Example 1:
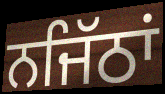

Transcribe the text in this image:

ਨਜਿੱਠਾਂ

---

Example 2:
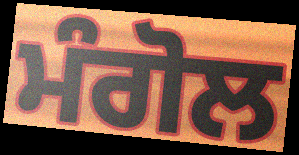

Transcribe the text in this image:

ਮੰਗੋਲ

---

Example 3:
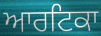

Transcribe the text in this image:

ਆਰਟਿਕਾ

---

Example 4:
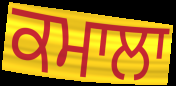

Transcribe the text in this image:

ਕਮਾਲਾ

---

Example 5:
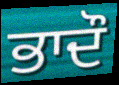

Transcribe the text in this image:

ਭਾਦੌ